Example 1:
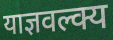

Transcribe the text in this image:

याज्ञवल्क्य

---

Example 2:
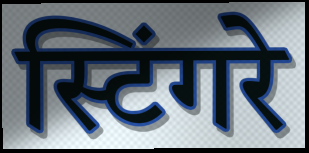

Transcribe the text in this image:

स्टिंगरे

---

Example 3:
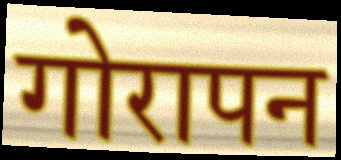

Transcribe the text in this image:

गोरापन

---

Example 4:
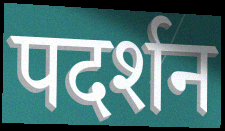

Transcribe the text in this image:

पदर्शन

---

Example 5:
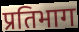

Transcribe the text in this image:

प्रतिभाग